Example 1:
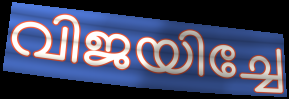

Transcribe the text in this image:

വിജയിച്ചേ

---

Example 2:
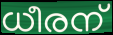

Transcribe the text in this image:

ധീരന്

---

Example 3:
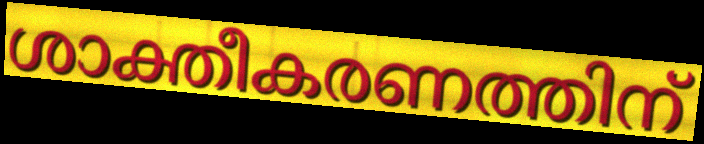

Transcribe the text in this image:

ശാക്തീകരണത്തിന്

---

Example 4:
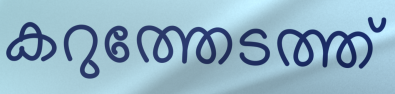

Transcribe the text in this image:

കറുത്തേടത്ത്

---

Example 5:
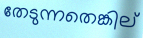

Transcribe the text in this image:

തേടുന്നതെങ്കില്